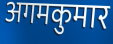
अगमकुमार